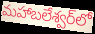
మహాబలేశ్వర్‌లో